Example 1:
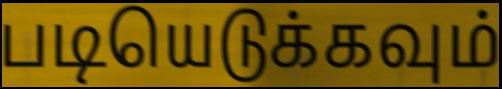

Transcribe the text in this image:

படியெடுக்கவும்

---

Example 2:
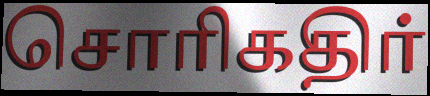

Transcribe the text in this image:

சொரிகதிர்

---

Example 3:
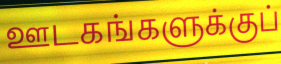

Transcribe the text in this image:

ஊடகங்களுக்குப்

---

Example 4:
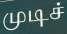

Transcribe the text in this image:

முடிச்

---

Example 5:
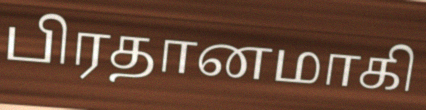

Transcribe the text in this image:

பிரதானமாகி